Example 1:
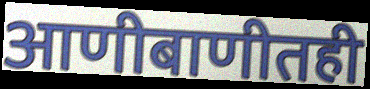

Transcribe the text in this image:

आणीबाणीतही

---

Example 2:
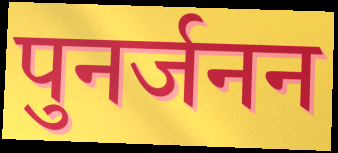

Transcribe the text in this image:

पुनर्जनन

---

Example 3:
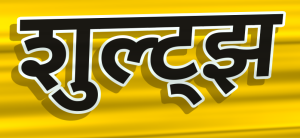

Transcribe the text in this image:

शुल्ट्झ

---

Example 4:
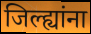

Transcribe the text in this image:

जिल्ह्यांना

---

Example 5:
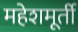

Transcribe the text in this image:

महेशमूर्ती